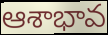
ఆశాభావ